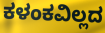
ಕಳಂಕವಿಲ್ಲದ